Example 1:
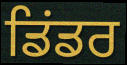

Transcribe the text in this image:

ਡਿਂਡਰ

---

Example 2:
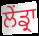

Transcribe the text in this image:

ਲੇਂਡ੍ਰਾ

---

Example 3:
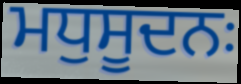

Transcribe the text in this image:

ਮਧੁਸੂਦਨਃ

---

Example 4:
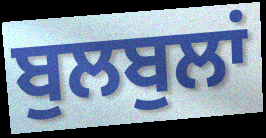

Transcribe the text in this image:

ਬੁਲਬੁਲਾਂ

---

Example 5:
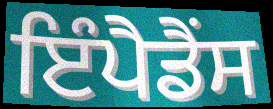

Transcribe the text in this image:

ਇੰਪੈਡੈਂਸ